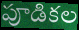
పూడికల